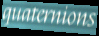
quaternions